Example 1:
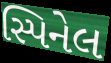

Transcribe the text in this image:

સ્પિનેલ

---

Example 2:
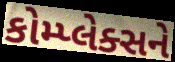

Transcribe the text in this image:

કોમ્પ્લેક્સને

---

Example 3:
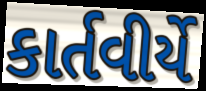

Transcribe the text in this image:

કાર્તવીર્યે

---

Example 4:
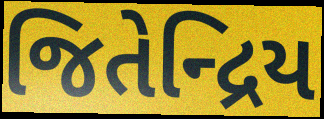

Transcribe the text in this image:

જિતેન્દ્રિય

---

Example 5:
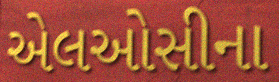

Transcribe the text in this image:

એલઓસીના